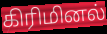
கிரிமினல்